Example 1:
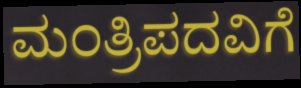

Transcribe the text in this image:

ಮಂತ್ರಿಪದವಿಗೆ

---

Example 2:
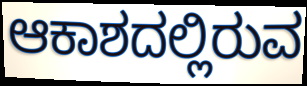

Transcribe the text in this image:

ಆಕಾಶದಲ್ಲಿರುವ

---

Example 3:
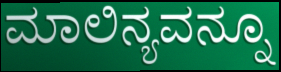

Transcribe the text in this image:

ಮಾಲಿನ್ಯವನ್ನೂ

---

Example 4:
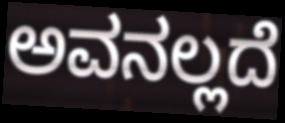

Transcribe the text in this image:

ಅವನಲ್ಲದೆ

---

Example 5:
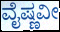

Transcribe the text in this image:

ವೈಷ್ಣವೀ